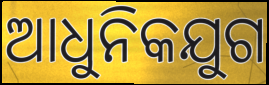
ଆଧୁନିକଯୁଗ